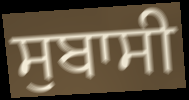
ਸੁਬਾਸੀ